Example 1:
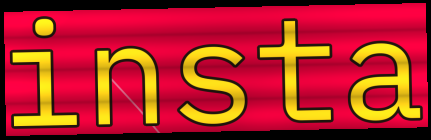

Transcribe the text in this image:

insta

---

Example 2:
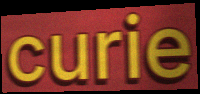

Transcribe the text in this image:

curie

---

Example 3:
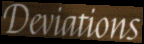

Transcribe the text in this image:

Deviations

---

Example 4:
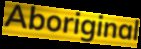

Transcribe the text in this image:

Aboriginal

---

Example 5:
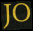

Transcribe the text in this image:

JO